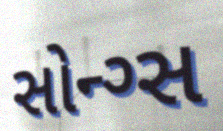
સોન્ગ્સ